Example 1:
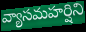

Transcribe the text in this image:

వ్యాసమహర్షిని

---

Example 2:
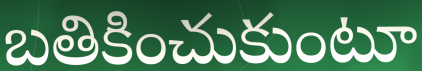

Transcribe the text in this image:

బతికించుకుంటూ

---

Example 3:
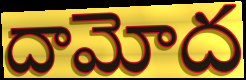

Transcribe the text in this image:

దామోద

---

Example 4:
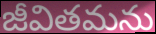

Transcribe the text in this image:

జీవితమను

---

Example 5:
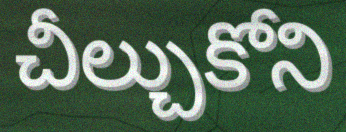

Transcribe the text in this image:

చీల్చుకోని